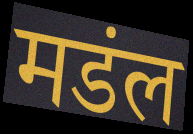
मडंल